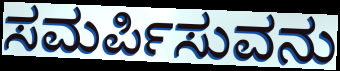
ಸಮರ್ಪಿಸುವನು